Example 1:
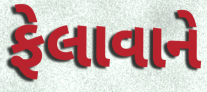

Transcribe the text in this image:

ફેલાવાને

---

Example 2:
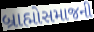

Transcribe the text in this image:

બ્રાહ્મોસમાજની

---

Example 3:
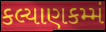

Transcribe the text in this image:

કલ્યાણકમ્મં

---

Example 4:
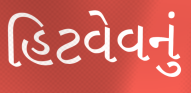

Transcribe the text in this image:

હિટવેવનું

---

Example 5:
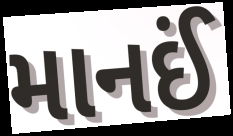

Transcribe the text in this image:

માનઈં